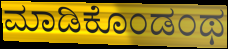
ಮಾಡಿಕೊಂಡಂಥ